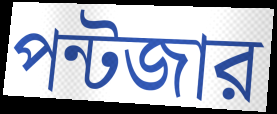
পন্টজার